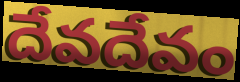
దేవదేవం